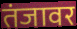
तंजावर